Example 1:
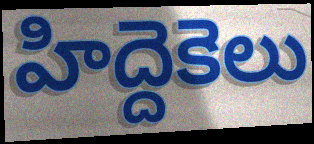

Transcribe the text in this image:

హిద్దెకెలు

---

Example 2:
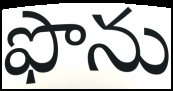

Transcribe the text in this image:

ఫొను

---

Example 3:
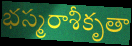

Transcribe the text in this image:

భస్మరాశీకృతా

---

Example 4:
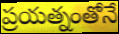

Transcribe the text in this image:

ప్రయత్నంతోనే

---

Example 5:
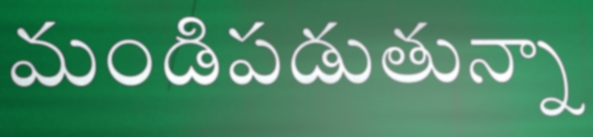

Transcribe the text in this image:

మండిపడుతున్నా